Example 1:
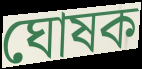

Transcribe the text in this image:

ঘোষক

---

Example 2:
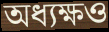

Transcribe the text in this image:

অধ্যক্ষও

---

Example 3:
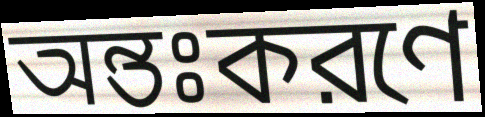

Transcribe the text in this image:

অন্তঃকরণে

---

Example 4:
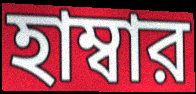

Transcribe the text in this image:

হাম্বার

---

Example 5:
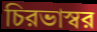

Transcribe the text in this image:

চিরভাস্বর